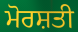
ਮੋਰਸ਼ਤੀ